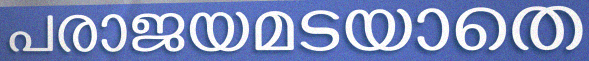
പരാജയമടയാതെ